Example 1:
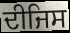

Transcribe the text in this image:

ਦੀਜਿਸ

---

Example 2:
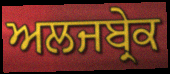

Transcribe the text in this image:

ਅਲਜਬ੍ਰੇਕ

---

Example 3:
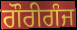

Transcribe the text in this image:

ਗੌਰੀਗੰਜ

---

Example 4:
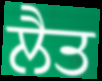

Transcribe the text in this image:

ਲੈਤ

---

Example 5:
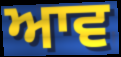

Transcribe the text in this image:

ਆਵ